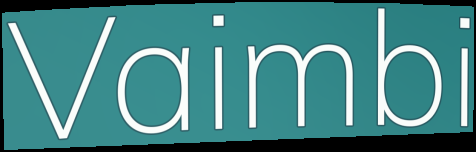
Vaimbi